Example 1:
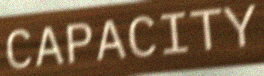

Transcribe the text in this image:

CAPACITY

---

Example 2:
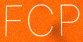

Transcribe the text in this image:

FCP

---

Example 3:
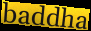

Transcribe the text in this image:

baddha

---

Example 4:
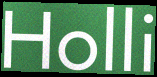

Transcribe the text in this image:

Holli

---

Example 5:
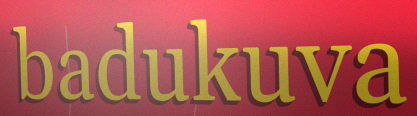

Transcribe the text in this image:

badukuva